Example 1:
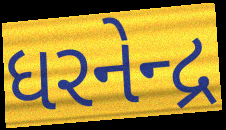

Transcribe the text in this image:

ધરનેન્દ્ર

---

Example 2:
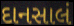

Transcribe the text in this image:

દાનસાલં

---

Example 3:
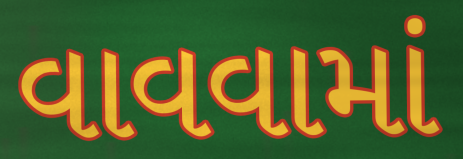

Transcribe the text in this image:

વાવવામાં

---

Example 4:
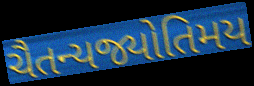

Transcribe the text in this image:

ચૈતન્યજ્યોતિમય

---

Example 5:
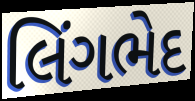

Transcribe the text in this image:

લિંગભેદ